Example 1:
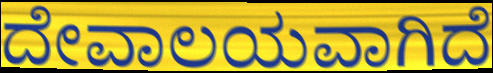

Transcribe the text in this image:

ದೇವಾಲಯವಾಗಿದೆ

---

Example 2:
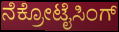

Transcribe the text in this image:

ನೆಕ್ರೋಟೈಸಿಂಗ್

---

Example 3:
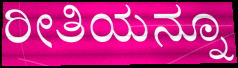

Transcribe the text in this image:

ರೀತಿಯನ್ನೂ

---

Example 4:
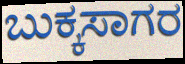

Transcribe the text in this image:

ಬುಕ್ಕಸಾಗರ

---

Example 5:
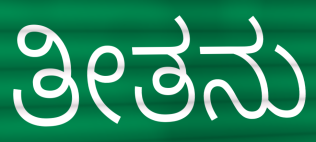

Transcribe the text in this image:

ತೀತನು